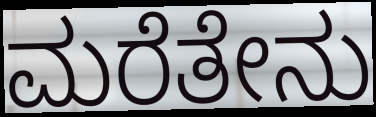
ಮರೆತೇನು